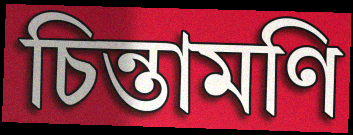
চিন্তামণি